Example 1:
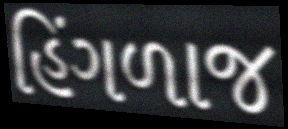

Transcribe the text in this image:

હિંગળાજ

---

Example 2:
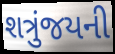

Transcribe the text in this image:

શત્રુંજયની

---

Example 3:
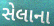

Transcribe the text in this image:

સેલાના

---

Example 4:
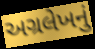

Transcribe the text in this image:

અગ્રલેખનું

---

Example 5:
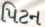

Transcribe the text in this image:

પિટન